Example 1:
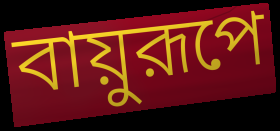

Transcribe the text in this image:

বায়ুরূপে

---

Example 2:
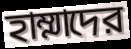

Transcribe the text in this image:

হাম্মাদের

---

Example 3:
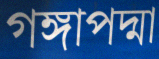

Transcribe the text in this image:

গঙ্গাপদ্মা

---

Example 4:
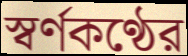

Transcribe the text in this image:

স্বর্ণকণ্ঠের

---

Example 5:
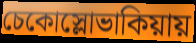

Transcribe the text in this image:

চেকোস্লোভাকিয়ায়